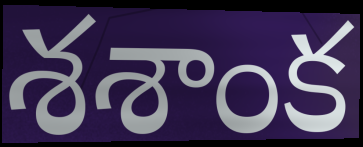
శశాంక